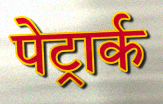
पेट्रार्क